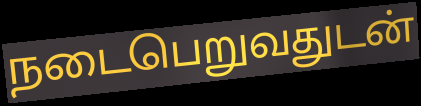
நடைபெறுவதுடன்